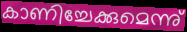
കാണിച്ചേക്കുമെന്നു്